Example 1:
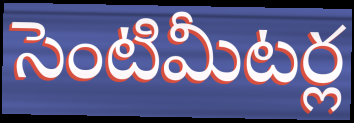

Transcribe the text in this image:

సెంటిమీటర్ల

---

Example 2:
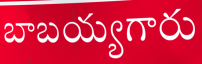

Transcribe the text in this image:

బాబయ్యగారు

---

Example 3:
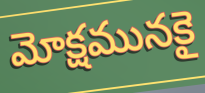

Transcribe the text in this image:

మోక్షమునకై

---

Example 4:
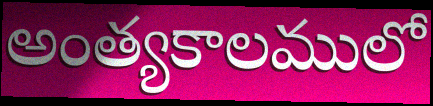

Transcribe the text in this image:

అంత్యకాలములో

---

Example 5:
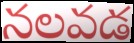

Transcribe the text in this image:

నలవడ